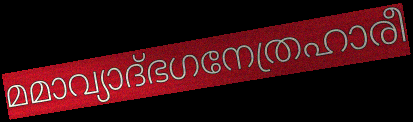
മമാവ്യാദ്ഭഗനേത്രഹാരീ